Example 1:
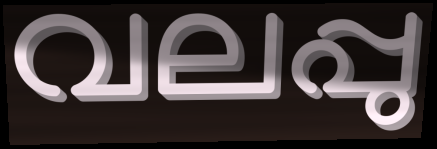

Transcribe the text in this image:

വലപ്പു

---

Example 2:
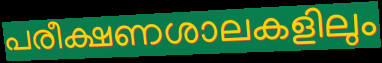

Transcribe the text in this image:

പരീക്ഷണശാലകളിലും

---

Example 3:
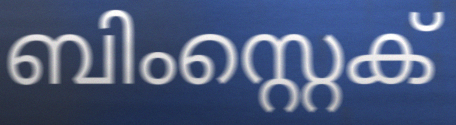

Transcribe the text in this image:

ബിംസ്റ്റെക്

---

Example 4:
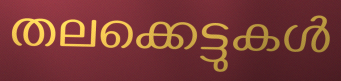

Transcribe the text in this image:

തലക്കെട്ടുകൾ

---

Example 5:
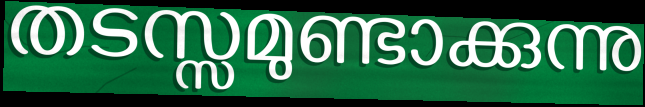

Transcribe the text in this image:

തടസ്സമുണ്ടാക്കുന്നു